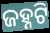
ଜହ୍ନଟି